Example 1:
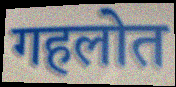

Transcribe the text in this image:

गहलोत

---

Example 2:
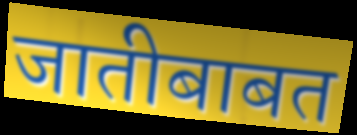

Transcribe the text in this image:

जातीबाबत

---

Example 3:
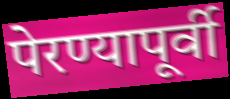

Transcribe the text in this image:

पेरण्यापूर्वी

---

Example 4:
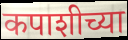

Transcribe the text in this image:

कपाशीच्या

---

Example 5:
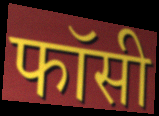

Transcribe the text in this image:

फॉसी